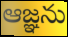
ఆజ్ఞను